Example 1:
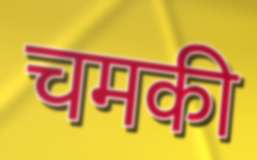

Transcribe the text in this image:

चमकी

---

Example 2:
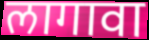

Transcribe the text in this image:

लागावा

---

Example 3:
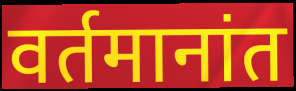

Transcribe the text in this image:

वर्तमानांत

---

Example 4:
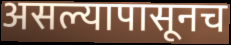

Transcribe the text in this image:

असल्यापासूनच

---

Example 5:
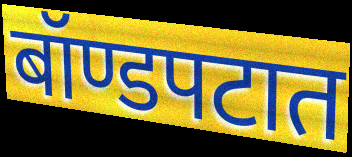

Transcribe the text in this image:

बॉण्डपटात